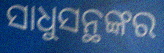
ସାଧୁସନ୍ଥଙ୍କର